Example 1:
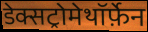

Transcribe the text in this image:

डेक्सट्रोमेथॉर्फ़ेन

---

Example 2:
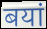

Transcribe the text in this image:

बयां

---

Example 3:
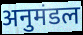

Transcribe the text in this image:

अनुमंडल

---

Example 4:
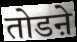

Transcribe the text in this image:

तोडऩे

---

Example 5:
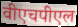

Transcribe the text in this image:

वीएचपीएल